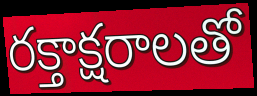
రక్తాక్షరాలతో